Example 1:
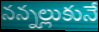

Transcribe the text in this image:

నన్నల్లుకునే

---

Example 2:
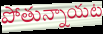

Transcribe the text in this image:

పోతున్నాయట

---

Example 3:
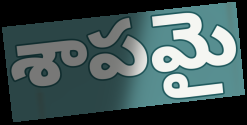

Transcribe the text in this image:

శాపమై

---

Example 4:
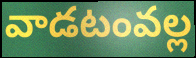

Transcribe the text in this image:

వాడటంవల్ల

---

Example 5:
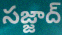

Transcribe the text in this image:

సజ్జాద్